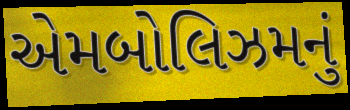
એમબોલિઝમનું